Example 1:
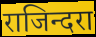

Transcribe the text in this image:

राजिन्दरा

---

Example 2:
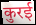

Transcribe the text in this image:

कुरई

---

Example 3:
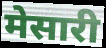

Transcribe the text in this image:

मेसारी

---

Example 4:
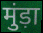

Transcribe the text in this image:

मुंड़ा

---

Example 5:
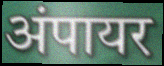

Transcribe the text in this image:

अंपायर